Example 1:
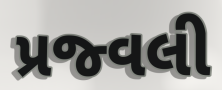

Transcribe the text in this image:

પ્રજ્વલી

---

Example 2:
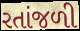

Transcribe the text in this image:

રતાંજળી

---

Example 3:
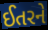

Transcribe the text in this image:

ઈતરને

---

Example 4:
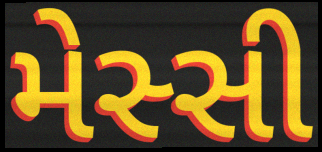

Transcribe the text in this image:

મેસ્સી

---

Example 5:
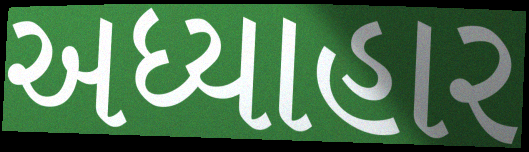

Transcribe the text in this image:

અધ્યાહાર